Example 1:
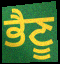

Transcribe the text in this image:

ਭੈਣੂ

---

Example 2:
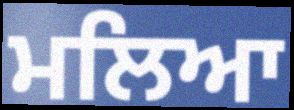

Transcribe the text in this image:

ਮਲਿਆ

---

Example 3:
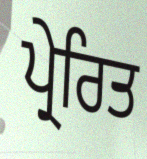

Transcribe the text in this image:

ਪ੍ਰੇਰਿਤ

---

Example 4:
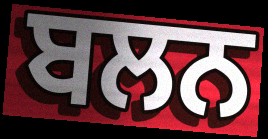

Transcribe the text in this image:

ਬਲਨ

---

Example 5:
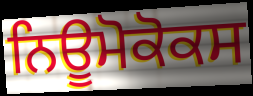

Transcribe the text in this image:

ਨਿਊਮੋਕੋਕਸ